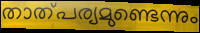
താത്പര്യമുണ്ടെന്നും